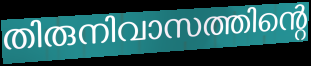
തിരുനിവാസത്തിന്റെ